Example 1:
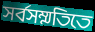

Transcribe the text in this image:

সর্বসম্মতিতে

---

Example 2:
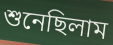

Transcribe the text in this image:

শুনেছিলাম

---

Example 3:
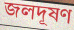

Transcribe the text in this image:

জলদূষণ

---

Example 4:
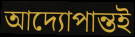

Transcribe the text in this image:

আদ্যোপান্তই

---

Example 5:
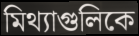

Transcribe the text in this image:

মিথ্যাগুলিকে